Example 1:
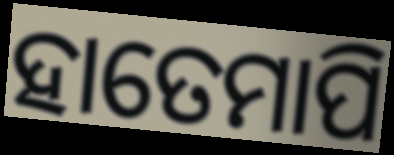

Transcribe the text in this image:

ହାତେମାପି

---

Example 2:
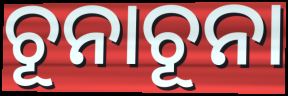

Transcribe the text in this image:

ଚୂନାଚୂନା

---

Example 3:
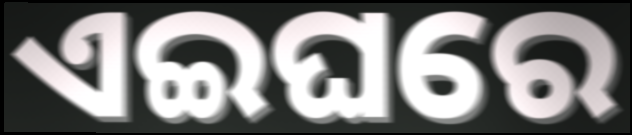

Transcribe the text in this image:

ଏଇଘରେ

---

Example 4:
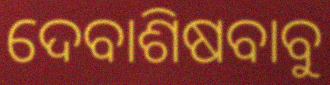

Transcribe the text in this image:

ଦେବାଶିଷବାବୁ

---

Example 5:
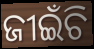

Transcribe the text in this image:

ଜୀଇଁଚି